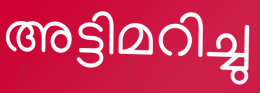
അട്ടിമറിച്ചു